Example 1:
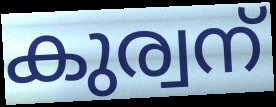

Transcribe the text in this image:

കുര്വന്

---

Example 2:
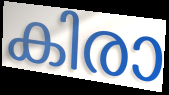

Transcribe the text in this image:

കിരാ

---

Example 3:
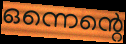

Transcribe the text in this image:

ഒന്നെന്റെ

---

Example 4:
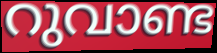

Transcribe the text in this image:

റുവാണ്ട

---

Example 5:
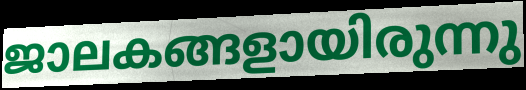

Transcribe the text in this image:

ജാലകങ്ങളായിരുന്നു